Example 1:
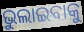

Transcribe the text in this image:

ଭୁଲାଇବାକୁ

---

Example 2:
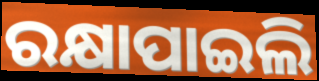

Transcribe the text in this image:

ରକ୍ଷାପାଇଲି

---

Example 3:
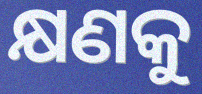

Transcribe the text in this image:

କ୍ଷଣକୁ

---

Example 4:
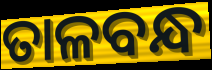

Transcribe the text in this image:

ତାଳବନ୍ଧ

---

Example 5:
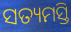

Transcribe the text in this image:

ସତ୍ୟମସ୍ତି